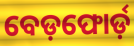
ବେଡ଼ଫୋର୍ଡ଼